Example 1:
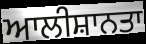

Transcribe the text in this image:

ਆਲੀਸ਼ਾਨਤਾ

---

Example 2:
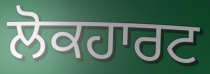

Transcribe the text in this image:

ਲੋਕਹਾਰਟ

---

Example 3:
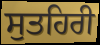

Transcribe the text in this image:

ਸੁਤਹਿਰੀ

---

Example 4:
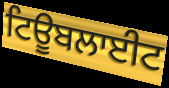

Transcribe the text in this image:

ਟਿਊਬਲਾਈਟ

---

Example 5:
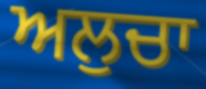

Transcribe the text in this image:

ਅਲੁਚਾ